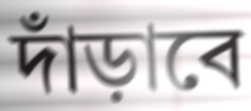
দাঁড়াবে